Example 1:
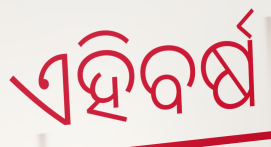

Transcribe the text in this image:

ଏହିବର୍ଷ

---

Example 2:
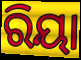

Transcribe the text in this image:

ରିୟା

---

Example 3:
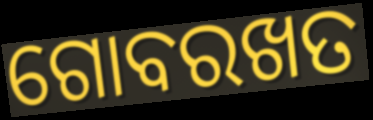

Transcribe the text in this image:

ଗୋବରଖତ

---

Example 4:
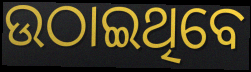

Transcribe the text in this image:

ଉଠାଇଥିବେ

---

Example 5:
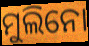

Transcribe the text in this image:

ମୁଲିନୋ